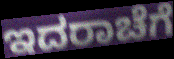
ಇದರಾಚೆಗೆ